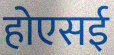
होएसई